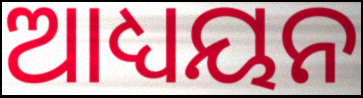
ଆଧ୍ୟୟନ